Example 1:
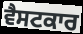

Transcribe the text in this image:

ਵੈਸਟਕਾਰ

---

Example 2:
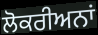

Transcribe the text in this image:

ਲੋਕਰੀਅਨਾਂ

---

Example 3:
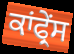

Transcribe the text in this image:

ਕਾਂਫ੍ਰੇਂਸ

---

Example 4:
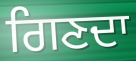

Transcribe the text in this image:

ਗਿਣਦਾ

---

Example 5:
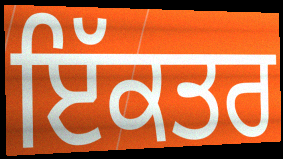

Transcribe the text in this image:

ਇੱਕਤਰ